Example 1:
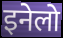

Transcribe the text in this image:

इनेलो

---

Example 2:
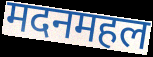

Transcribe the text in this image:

मदनमहल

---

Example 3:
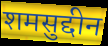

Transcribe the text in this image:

शमसुद्दीन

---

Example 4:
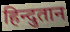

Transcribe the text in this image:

हिन्दुतान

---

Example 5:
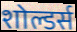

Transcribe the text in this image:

शोल्डर्स